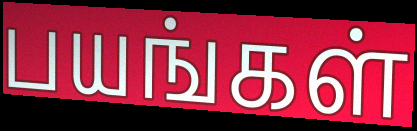
பயங்கள்